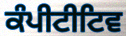
ਕੰਪੀਟੀਟਿਵ